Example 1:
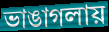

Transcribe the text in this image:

ভাঙাগলায়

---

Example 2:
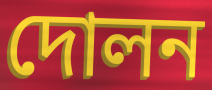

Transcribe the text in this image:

দোলন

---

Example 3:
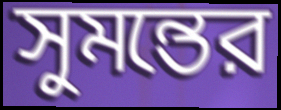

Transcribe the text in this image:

সুমন্তের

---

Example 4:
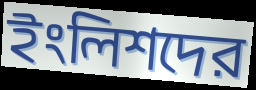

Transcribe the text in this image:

ইংলিশদের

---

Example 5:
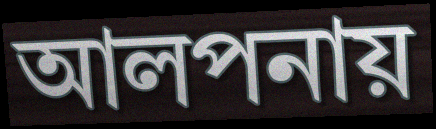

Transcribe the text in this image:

আলপনায়